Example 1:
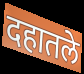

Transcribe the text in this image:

दहातले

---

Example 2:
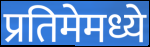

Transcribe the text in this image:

प्रतिमेमध्ये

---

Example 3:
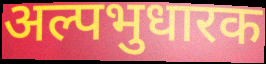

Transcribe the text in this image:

अल्पभुधारक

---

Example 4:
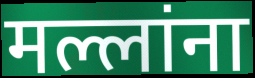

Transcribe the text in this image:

मल्लांना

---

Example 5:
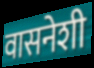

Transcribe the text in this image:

वासनेशी